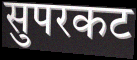
सुपरकट